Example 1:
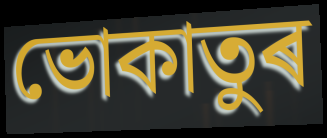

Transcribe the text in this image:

ভোকাতুৰ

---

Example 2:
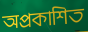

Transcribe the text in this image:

অপ্ৰকাশিত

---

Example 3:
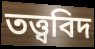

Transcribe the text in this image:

তত্ত্ববিদ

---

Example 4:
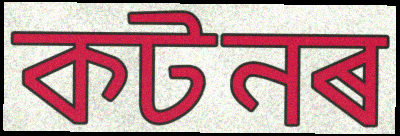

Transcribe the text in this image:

কটনৰ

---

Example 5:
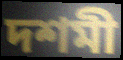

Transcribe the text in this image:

দশমী